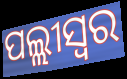
ପଲ୍ଲୀସ୍ଵର